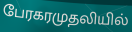
பேரகரமுதலியில்